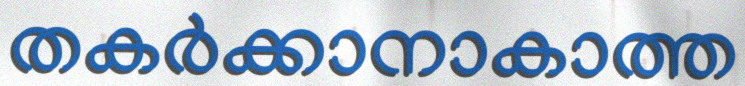
തകർക്കാനാകാത്ത